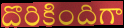
దొరికిందిగా